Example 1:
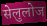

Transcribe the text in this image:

सेलुलोज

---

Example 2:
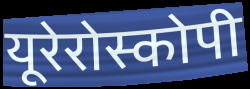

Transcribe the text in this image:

यूरेरोस्कोपी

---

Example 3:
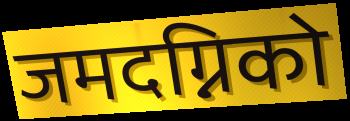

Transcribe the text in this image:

जमदग्निको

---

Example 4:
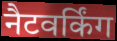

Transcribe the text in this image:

नैटवर्किंग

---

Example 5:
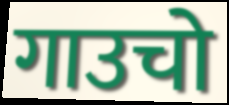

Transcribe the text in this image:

गाउचो